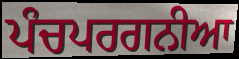
ਪੰਚਪਰਗਨੀਆ